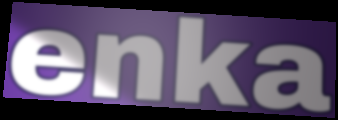
enka